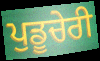
ਪੁਡੂਚੇਰੀ